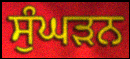
ਸੁੰਘੜਨ